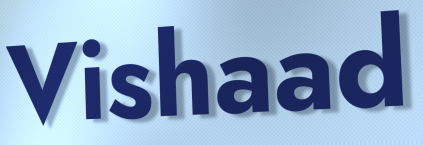
Vishaad